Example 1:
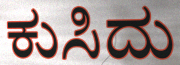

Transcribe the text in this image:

ಕುಸಿದು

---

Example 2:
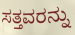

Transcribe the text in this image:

ಸತ್ತವರನ್ನು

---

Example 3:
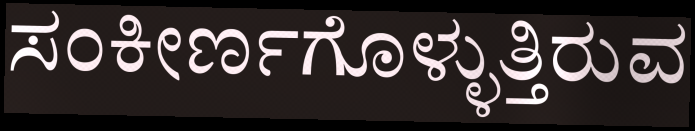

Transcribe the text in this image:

ಸಂಕೀರ್ಣಗೊಳ್ಳುತ್ತಿರುವ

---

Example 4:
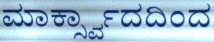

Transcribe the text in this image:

ಮಾರ್ಕ್ಸ್ವಾದದಿಂದ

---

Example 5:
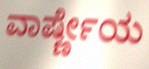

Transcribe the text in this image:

ವಾರ್ಷ್ಣೇಯ